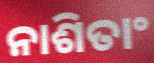
ନାଶିତାଂ